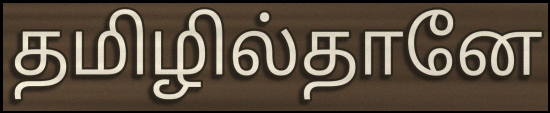
தமிழில்தானே